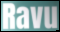
Ravu